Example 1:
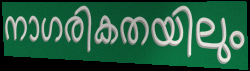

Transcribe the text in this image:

നാഗരികതയിലും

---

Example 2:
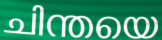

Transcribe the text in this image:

ചിന്തയെ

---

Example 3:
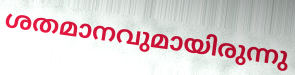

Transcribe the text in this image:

ശതമാനവുമായിരുന്നു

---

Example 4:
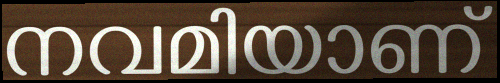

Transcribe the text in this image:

നവമിയാണ്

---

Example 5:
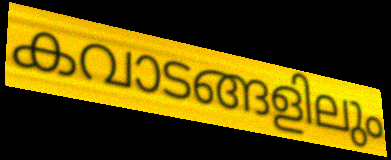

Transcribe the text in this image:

കവാടങ്ങളിലും